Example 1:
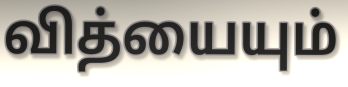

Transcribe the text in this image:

வித்யையும்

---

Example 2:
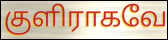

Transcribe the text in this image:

குளிராகவே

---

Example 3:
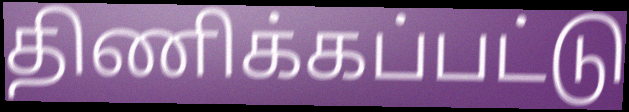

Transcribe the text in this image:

திணிக்கப்பட்டு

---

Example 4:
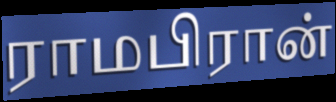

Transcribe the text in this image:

ராமபிரான்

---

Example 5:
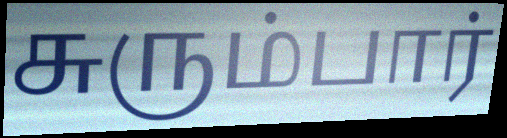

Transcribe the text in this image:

சுரும்பார்